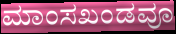
ಮಾಂಸಖಂಡವೂ